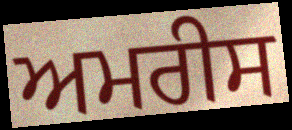
ਅਮਰੀਸ